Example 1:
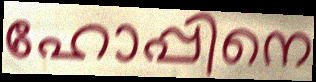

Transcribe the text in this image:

ഹോപ്പിനെ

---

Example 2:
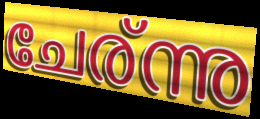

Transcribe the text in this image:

ചേര്ന്നു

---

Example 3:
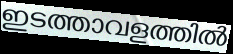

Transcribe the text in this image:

ഇടത്താവളത്തിൽ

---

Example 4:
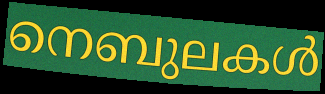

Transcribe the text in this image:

നെബുലകൾ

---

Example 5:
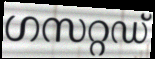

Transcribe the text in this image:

ഗസറ്റഡ്